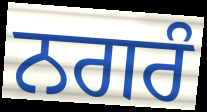
ਨਗਰੰ